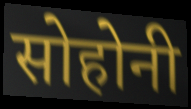
सोहोनी